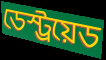
ডেস্ট্রয়েড